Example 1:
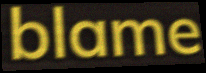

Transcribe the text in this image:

blame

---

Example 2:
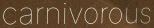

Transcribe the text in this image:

carnivorous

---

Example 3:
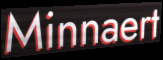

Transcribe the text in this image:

Minnaert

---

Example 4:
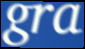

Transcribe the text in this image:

gra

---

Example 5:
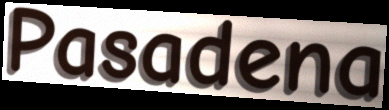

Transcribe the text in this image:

Pasadena